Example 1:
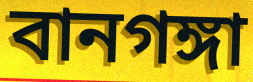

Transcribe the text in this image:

বানগঙ্গা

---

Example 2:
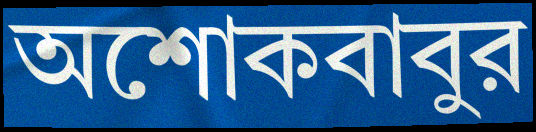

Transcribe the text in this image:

অশোকবাবুর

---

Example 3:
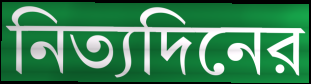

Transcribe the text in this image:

নিত্যদিনের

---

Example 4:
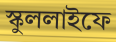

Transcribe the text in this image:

স্কুললাইফে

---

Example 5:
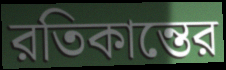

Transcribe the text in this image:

রতিকান্তের